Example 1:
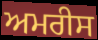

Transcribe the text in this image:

ਅਮਰੀਸ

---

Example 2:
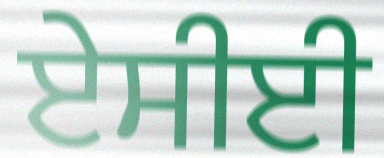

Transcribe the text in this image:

ਏਸੀਈ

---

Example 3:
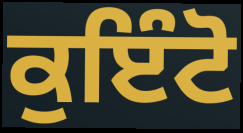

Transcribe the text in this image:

ਕੁਇੰਟੋ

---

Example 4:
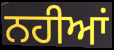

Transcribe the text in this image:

ਨਹੀਆਂ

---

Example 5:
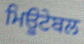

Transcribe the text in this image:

ਮਿਊਟੇਬਲ